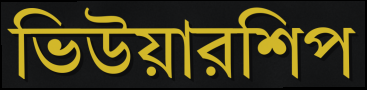
ভিউয়ারশিপ